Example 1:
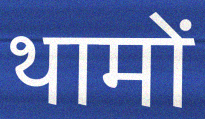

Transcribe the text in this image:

थामों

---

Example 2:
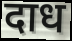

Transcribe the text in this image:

दाध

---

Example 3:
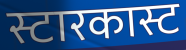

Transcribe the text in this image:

स्टारकास्ट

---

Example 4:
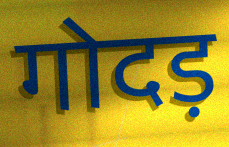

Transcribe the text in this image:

गोदड़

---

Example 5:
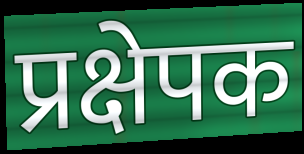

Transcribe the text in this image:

प्रक्षेपक